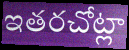
ఇతరచోట్లా